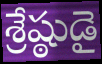
శ్రేష్ఠుడై